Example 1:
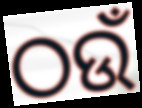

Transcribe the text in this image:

ଠଉଁ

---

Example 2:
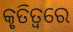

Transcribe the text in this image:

କୃତିତ୍ୱରେ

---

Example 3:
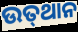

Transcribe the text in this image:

ଉତ୍‌ଥାନ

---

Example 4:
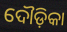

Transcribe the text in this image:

ଦୌଡ଼ିକା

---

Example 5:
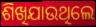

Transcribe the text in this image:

ଶିଖିଯାଉଥିଲେ